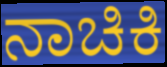
ನಾಚಿಕಿ